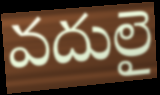
వదులై